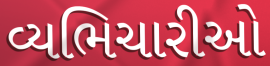
વ્યભિચારીઓ